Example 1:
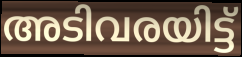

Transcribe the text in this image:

അടിവരയിട്ട്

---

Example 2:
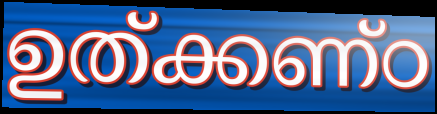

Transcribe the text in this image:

ഉത്ക്കണ്ഠ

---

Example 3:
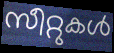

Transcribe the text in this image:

സീറ്റുകൾ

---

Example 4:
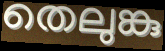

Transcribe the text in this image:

തെലുങ്കു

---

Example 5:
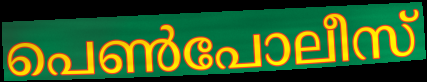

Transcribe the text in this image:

പെൺപോലീസ്